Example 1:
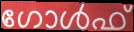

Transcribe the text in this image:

ഗോൾഫ്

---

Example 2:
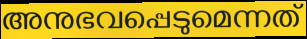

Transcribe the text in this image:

അനുഭവപ്പെടുമെന്നത്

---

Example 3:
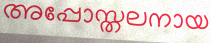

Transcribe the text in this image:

അപ്പോസ്തലനായ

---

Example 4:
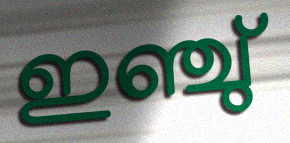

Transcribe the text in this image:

ഇഞ്ചു്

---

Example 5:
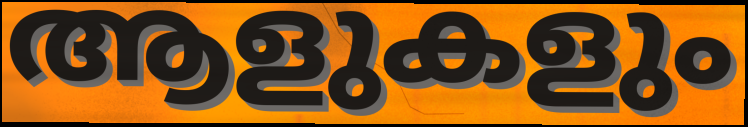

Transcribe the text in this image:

ആളുകളും